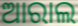
ଆରାଲ